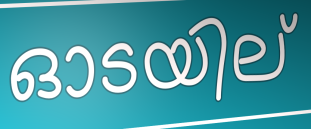
ഓടയില്